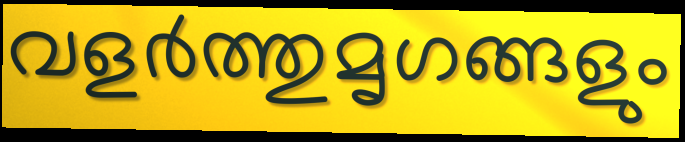
വളർത്തുമൃഗങ്ങളും